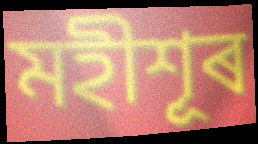
মহীশূৰ